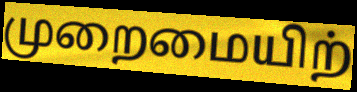
முறைமையிற்